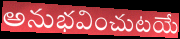
అనుభవించుటయే